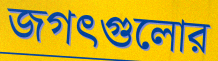
জগৎগুলোর